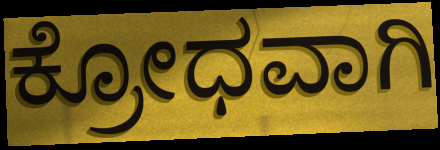
ಕ್ರೋಧವಾಗಿ